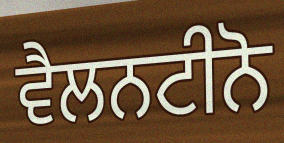
ਵੈਲਨਟੀਨੋ